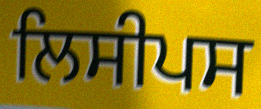
ਲਿਸੀਪਸ